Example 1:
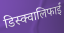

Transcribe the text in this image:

डिस्क्वालिफाई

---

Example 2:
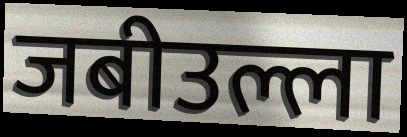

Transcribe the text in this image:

जबीउल्ला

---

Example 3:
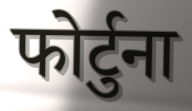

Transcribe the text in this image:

फोर्टुना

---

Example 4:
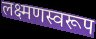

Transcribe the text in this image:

लक्ष्मणस्वरूप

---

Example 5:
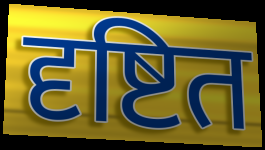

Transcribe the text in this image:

दृष्टित